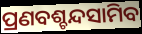
ପ୍ରଣବଶ୍ଚନ୍ଦସାମିବ